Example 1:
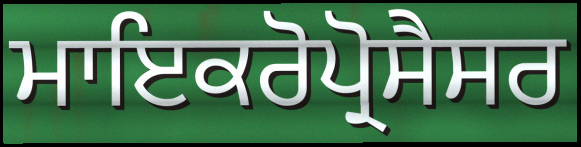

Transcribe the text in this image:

ਮਾਇਕਰੋਪ੍ਰੋਸੈਸਰ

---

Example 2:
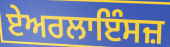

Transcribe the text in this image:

ਏਅਰਲਾਇੰਸਜ਼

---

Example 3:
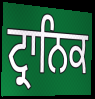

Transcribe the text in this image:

ਟ੍ਰਾਨਿਕ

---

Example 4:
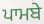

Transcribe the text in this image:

ਪਾਮਬੇ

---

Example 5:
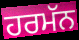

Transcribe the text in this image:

ਹਰਮੱਨ